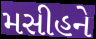
મસીહને